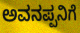
ಅವನಪ್ಪನಿಗೆ